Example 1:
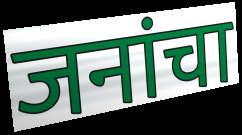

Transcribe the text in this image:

जनांचा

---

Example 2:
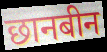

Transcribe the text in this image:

छानबीन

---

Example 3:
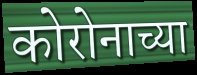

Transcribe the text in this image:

कोरोनाच्या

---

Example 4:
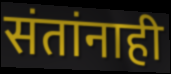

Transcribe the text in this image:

संतांनाही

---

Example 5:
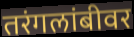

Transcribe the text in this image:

तरंगलांबीवर